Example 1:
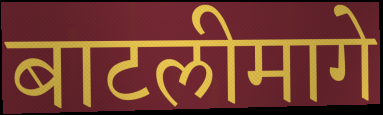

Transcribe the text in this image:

बाटलीमागे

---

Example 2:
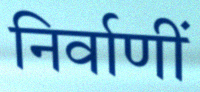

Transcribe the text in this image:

निर्वाणीं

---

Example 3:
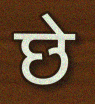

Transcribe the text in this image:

छे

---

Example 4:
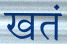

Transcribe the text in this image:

खतं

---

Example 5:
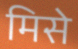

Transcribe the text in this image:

मिसे